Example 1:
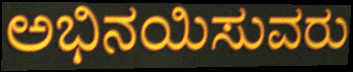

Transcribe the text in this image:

ಅಭಿನಯಿಸುವರು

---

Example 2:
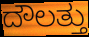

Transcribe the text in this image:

ದೌಲತ್ತು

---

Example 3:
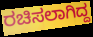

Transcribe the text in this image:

ರಚಿಸಲಾಗಿದ್ದ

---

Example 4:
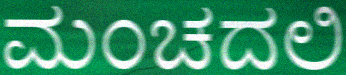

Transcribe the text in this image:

ಮಂಚದಲಿ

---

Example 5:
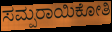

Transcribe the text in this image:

ಸಮ್ಪರಾಯಿಕೋತಿ